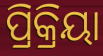
ପ୍ରିକ୍ରିୟା